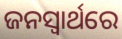
ଜନସ୍ୱାର୍ଥରେ